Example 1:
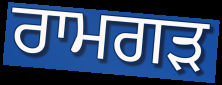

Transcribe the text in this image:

ਰਾਮਗੜ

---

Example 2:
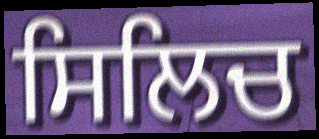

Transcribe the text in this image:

ਸਿਲਿਚ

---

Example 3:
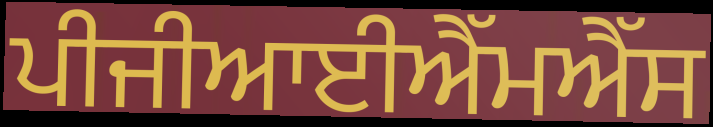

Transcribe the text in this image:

ਪੀਜੀਆਈਐੱਮਐੱਸ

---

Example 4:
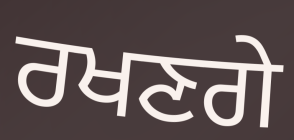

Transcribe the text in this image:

ਰਖਣਗੇ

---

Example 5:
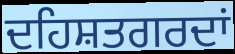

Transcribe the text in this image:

ਦਹਿਸ਼ਤਗਰਦਾਂ